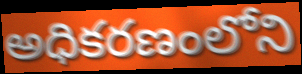
అధికరణంలోని